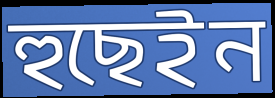
হুছেইন